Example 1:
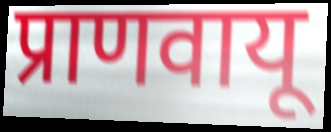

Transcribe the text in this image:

प्राणवायू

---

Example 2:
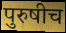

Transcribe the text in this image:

पुरुषीच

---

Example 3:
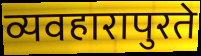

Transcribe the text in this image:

व्यवहारापुरते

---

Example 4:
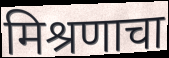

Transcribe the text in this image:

मिश्रणाचा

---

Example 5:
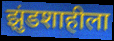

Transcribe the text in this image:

झुंडशाहीला